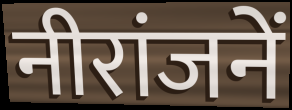
नीरांजनें